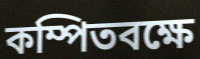
কম্পিতবক্ষে